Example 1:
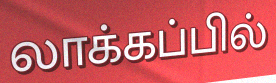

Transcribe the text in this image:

லாக்கப்பில்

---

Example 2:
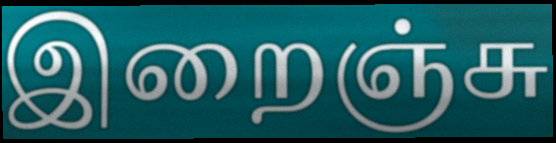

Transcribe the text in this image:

இறைஞ்சு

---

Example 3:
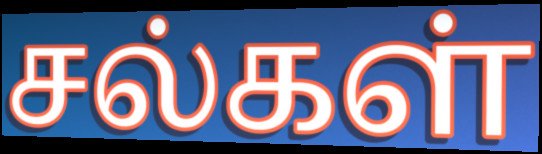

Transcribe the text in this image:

சல்கள்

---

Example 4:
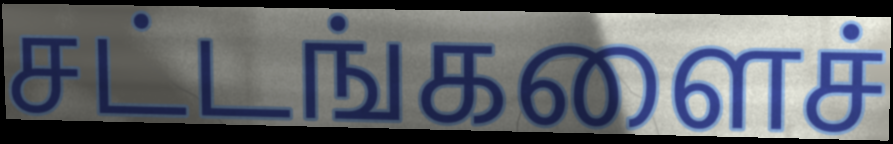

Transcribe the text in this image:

சட்டங்களைச்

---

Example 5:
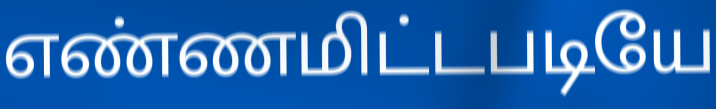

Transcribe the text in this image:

எண்ணமிட்டபடியே